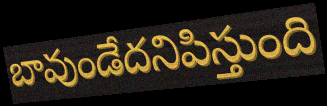
బావుండేదనిపిస్తుంది